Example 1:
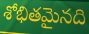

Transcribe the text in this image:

శోభితమైనది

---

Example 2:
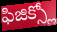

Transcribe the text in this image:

ఫిజిక్స్లో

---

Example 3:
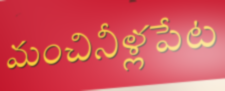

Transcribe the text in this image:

మంచినీళ్లపేట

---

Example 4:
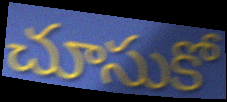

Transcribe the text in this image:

చూసుకో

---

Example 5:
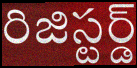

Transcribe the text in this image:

రిజిస్టర్డ్